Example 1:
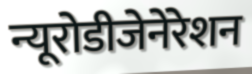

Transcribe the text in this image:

न्यूरोडीजेनेरेशन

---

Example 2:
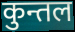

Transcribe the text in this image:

कुन्तल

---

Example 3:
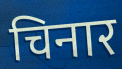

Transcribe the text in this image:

चिनार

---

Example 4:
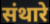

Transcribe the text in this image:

संथारे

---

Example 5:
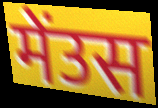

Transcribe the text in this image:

मेंउस